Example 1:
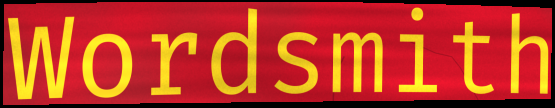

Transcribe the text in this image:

Wordsmith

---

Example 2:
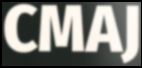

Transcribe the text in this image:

CMAJ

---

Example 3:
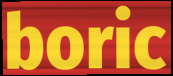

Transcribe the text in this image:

boric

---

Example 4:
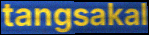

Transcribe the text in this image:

tangsakal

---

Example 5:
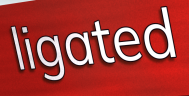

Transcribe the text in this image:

ligated